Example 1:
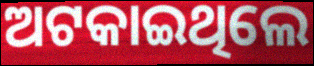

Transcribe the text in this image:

ଅଟକାଇଥିଲେ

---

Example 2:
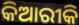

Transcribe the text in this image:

କିଆରୀକି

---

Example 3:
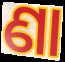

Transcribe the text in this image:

ଣା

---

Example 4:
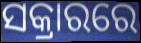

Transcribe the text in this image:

ସକ୍ରାରରେ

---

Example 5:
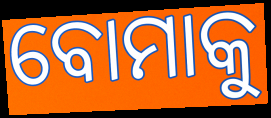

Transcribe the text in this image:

ବୋମାକୁ